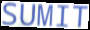
SUMIT